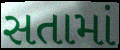
સતામાં